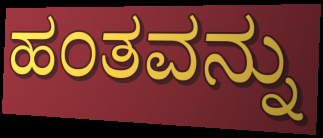
ಹಂತವನ್ನು